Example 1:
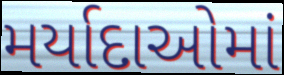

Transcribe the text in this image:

મર્યાદાઓમાં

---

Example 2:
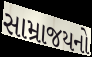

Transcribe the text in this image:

સામ્રાજયનો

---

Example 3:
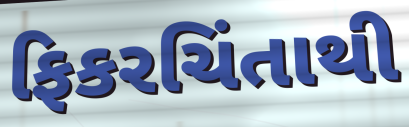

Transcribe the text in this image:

ફિકરચિંતાથી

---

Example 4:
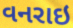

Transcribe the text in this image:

વનરાઇ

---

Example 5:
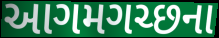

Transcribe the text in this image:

આગમગચ્છના